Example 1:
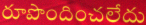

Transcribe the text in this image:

రూపొందించలేదు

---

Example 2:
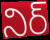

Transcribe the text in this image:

నిర్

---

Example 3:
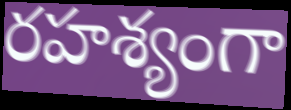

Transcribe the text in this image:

రహశ్యంగా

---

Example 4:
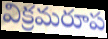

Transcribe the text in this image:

విక్రమరూప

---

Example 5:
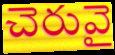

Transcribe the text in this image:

చెరువై